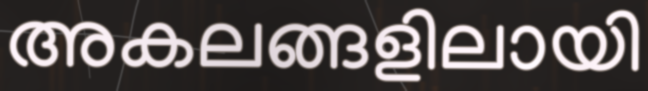
അകലങ്ങളിലായി